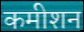
कमीशन